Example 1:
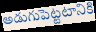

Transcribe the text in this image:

అడుగుపెట్టటానికి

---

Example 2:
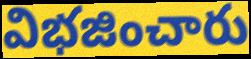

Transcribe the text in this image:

విభజించారు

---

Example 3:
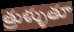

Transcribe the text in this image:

త్రుళ్ళుతూ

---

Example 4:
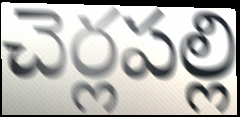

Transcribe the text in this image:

చెర్లపల్లి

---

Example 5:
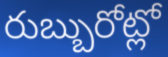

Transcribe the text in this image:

రుబ్బురోట్లో